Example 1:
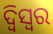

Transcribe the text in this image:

ଦ୍ଵିସ୍ଵର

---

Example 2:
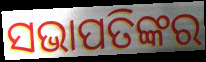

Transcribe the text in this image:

ସଭାପତିଙ୍କର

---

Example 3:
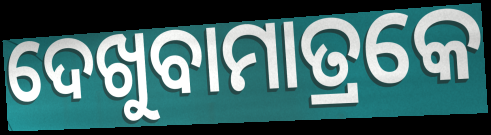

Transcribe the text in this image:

ଦେଖୁବାମାତ୍ରକେ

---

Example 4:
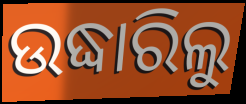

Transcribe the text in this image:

ଉଦ୍ଧାରିଲୁ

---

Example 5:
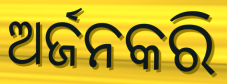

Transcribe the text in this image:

ଅର୍ଜନକରି